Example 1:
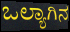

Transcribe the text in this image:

ಒಲ್ಯಾಗಿನ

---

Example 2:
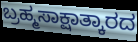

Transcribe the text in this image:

ಬ್ರಹ್ಮಸಾಕ್ಷಾತ್ಕಾರದ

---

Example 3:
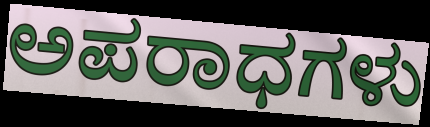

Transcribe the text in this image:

ಅಪರಾಧಗಳು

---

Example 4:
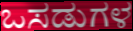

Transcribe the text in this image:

ಒಸಡುಗಳ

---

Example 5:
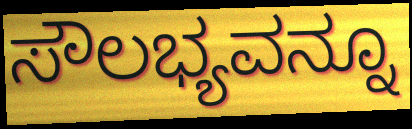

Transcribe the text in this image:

ಸೌಲಭ್ಯವನ್ನೂ